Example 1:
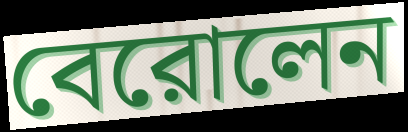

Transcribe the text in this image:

বেরোলেন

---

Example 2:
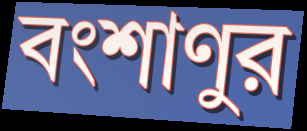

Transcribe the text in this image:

বংশাণুর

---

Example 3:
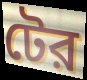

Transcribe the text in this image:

টের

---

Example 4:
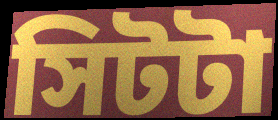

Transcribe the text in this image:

সিটটা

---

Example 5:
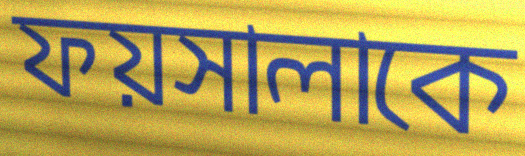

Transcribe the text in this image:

ফয়সালাকে